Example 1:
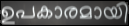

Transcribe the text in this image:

ഉപകാരമായി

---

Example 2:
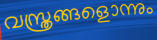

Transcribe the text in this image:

വസ്ത്രങ്ങളൊന്നും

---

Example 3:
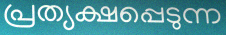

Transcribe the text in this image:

പ്രത്യക്ഷപ്പെടുന്ന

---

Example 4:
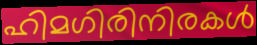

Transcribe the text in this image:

ഹിമഗിരിനിരകൾ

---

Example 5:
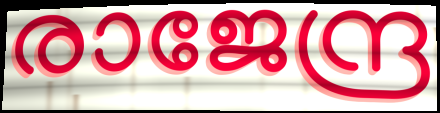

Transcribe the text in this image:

രാജേന്ദ്ര